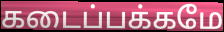
கடைப்பக்கமே